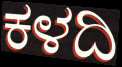
ಕಳದಿ